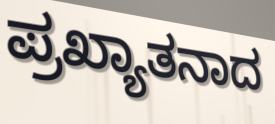
ಪ್ರಖ್ಯಾತನಾದ